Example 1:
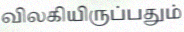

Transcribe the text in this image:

விலகியிருப்பதும்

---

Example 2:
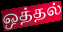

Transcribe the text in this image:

ஒத்தல்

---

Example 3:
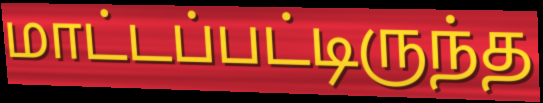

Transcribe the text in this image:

மாட்டப்பட்டிருந்த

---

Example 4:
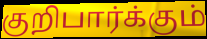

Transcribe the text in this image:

குறிபார்க்கும்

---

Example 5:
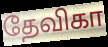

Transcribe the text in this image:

தேவிகா